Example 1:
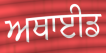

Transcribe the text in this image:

ਅਥਾਈਡ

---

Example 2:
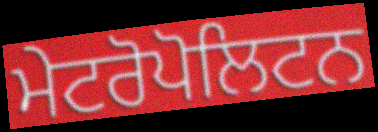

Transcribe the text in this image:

ਮੇਟਰੋਪੋਲਿਟਨ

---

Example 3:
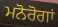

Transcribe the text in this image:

ਮਨੋਰੋਗਾਂ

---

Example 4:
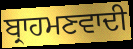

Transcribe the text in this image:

ਬ੍ਰਾਹਮਣਵਾਦੀ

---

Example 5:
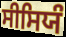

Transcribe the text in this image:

ਸੀਸਿਯੰ